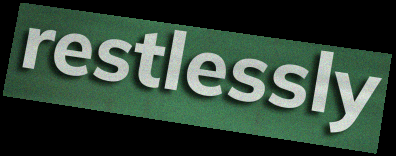
restlessly